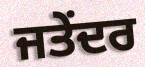
ਜਤੇਂਦਰ